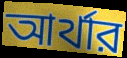
আর্থার